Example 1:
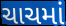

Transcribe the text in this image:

ચાચમાં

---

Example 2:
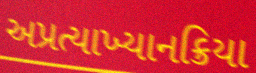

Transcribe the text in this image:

અપ્રત્યાખ્યાનક્રિયા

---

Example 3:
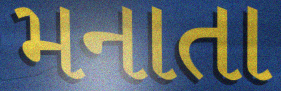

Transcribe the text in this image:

મનાતા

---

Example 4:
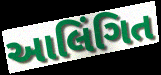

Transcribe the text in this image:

આલિંગિત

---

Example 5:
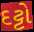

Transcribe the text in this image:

દટ્ટો